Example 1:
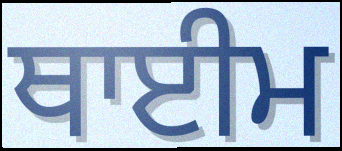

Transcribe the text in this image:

ਥਾਈਮ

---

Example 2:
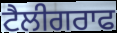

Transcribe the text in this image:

ਟੈਲੀਗਰਾਫ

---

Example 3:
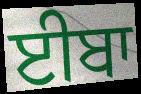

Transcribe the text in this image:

ਈਬਾ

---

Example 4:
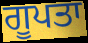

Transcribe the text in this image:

ਗੂਪਤਾ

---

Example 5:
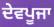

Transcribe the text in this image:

ਦੇਵਪੂਜਾ